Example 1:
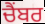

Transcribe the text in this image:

ਚੈਂਬਰ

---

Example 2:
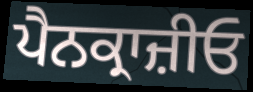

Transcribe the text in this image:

ਪੈਨਕ੍ਰਾਜ਼ੀਓ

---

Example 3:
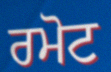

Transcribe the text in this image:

ਰਮੋਟ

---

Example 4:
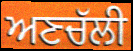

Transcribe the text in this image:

ਅਣਚੱਲੀ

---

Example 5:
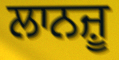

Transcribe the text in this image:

ਲਾਨਜ਼ੂ